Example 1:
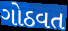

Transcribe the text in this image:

ગોઠવત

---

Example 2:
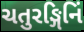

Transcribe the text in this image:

ચતુરઙ્ગિનિં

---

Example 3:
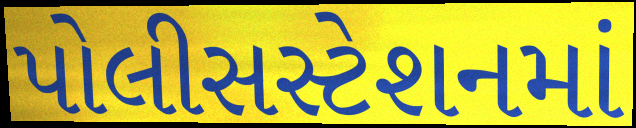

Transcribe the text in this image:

પોલીસસ્ટેશનમાં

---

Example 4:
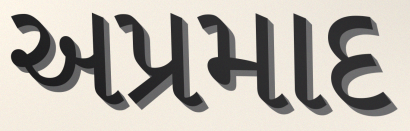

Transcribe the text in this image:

અપ્રમાદ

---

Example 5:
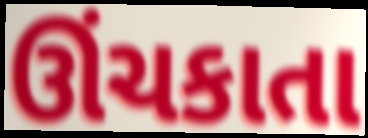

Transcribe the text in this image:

ઊંચકાતા